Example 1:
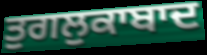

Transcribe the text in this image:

ਤੁਗਲੁਕਾਬਾਦ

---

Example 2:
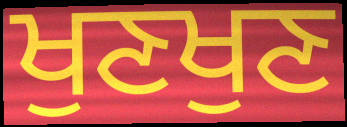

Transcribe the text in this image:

ਖੁਣਖੁਣ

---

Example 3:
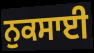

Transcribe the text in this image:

ਨੁਕਸਾਈ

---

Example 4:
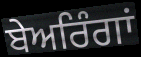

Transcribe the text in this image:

ਬੇਅਰਿੰਗਾਂ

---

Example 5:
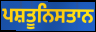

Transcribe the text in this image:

ਪਸ਼ਤੂਨਿਸਤਾਨ